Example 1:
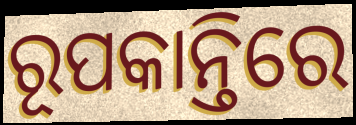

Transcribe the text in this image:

ରୂପକାନ୍ତିରେ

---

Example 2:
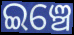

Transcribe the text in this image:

ଇଞ୍ଚେ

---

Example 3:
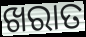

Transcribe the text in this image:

ଖରାତ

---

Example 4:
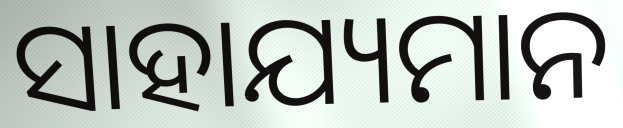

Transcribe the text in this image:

ସାହାଯ୍ୟମାନ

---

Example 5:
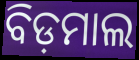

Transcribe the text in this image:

ବିଡ଼ମାଲ